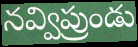
నవ్విప్రుండు